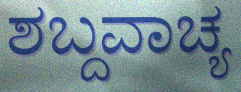
ಶಬ್ದವಾಚ್ಯ